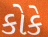
કોકે